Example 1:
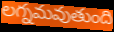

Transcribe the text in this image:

లగ్నమవుతుంది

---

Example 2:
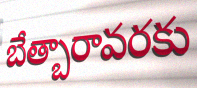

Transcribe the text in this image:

బేత్బారావరకు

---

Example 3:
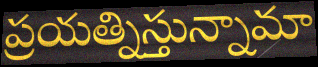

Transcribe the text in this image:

ప్రయత్నిస్తున్నామా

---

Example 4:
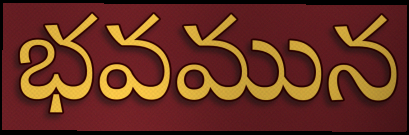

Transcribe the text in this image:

భవమున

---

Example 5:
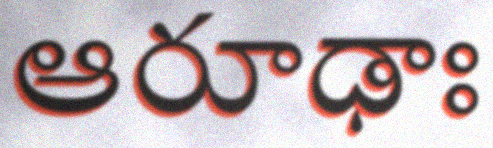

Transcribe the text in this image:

ఆరూఢాః